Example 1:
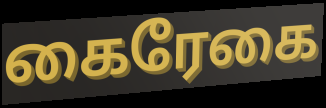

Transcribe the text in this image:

கைரேகை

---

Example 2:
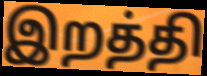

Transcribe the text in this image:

இறத்தி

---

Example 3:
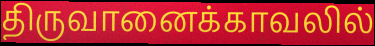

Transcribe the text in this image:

திருவானைக்காவலில்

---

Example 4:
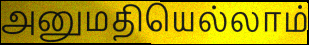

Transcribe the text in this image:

அனுமதியெல்லாம்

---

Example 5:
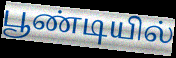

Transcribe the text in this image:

பூண்டியில்